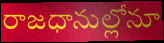
రాజధానుల్లోనూ